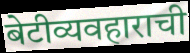
बेटीव्यवहाराची